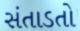
સંતાડતો